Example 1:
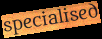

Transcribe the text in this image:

specialised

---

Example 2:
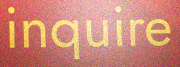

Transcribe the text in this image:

inquire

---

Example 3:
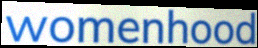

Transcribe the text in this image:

womenhood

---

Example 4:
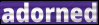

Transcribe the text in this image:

adorned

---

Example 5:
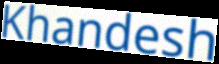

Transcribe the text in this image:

Khandesh